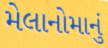
મેલાનોમાનું